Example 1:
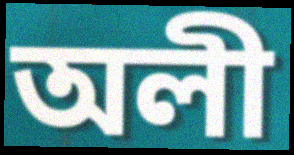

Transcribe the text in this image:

অলী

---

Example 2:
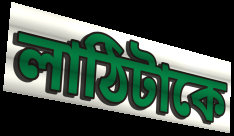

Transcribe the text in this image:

লাঠিটাকে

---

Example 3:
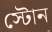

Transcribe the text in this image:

স্টোন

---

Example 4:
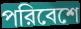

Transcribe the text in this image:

পরিবেশে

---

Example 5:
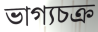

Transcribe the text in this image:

ভাগ্যচক্র